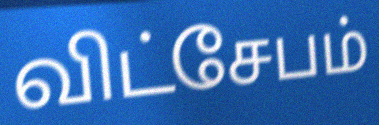
விட்சேபம்